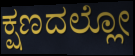
ಕ್ಷಣದಲ್ಲೋ